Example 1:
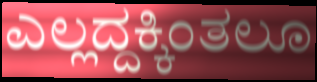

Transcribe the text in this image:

ಎಲ್ಲದ್ದಕ್ಕಿಂತಲೂ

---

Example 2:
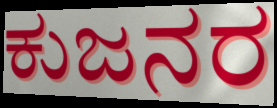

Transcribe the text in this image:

ಕುಜನರ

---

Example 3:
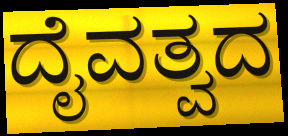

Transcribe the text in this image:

ದೈವತ್ವದ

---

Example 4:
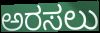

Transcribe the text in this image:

ಅರಸಲು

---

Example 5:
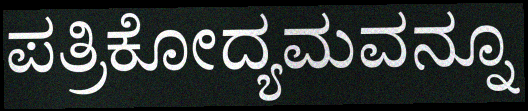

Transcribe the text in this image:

ಪತ್ರಿಕೋದ್ಯಮವನ್ನೂ